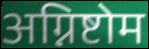
अग्निष्टोम